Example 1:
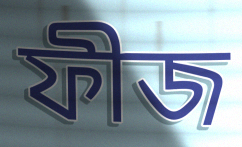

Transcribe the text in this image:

ফীজ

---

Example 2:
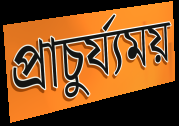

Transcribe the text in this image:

প্ৰাচুৰ্য্যময়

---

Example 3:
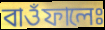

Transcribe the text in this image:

বাওঁফালেঃ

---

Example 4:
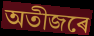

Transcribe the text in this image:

অতীজৰে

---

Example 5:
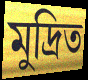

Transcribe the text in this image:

মুদ্ৰিত